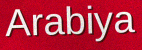
Arabiya